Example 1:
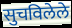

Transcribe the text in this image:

सुचविलेले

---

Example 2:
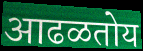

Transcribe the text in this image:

आढळतोय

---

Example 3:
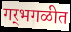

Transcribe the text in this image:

गर्भगळीत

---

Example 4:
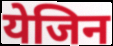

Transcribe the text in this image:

येजिन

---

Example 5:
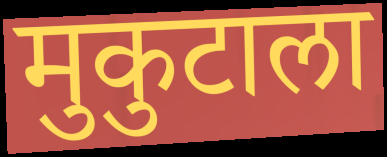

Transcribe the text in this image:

मुकुटाला